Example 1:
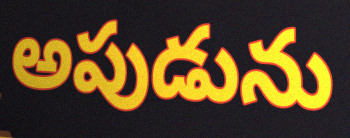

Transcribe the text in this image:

అపుడును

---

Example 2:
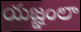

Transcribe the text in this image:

యజ్ఞంలా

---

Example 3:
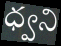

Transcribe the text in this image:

ధ్వని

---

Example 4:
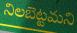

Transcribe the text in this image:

నిలబెట్టమని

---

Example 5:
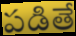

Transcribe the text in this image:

పడితే